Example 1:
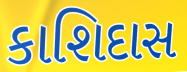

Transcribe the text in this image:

કાશિદાસ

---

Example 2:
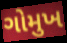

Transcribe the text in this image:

ગોમુખ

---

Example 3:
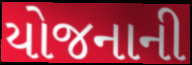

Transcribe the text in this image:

યોજનાની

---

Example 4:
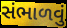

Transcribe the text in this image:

સંભાળવું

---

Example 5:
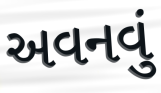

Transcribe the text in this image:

અવનવું